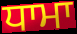
ਧਾਮਾ